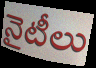
నైటీలు